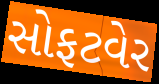
સોફટવેર